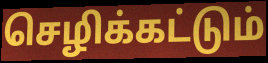
செழிக்கட்டும்